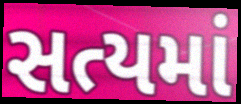
સત્યમાં